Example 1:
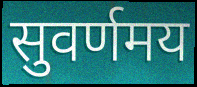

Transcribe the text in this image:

सुवर्णमय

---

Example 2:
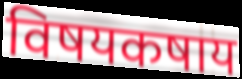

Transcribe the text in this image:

विषयकषाय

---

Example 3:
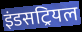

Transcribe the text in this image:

इंडसट्रियल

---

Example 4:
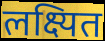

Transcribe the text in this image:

लक्ष्यित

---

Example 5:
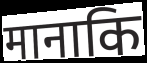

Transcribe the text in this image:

मानाकि